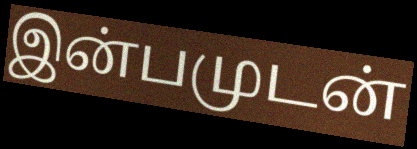
இன்பமுடன்